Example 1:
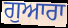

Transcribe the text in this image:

ਗੁਆਰਾ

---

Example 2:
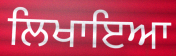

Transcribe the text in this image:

ਲਿਖਾਇਆ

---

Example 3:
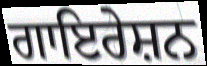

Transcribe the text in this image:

ਗਾਇਰੇਸ਼ਨ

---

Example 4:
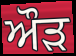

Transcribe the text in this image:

ਔਡ਼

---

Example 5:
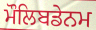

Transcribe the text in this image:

ਮੌਲਿਬਡੇਨਮ